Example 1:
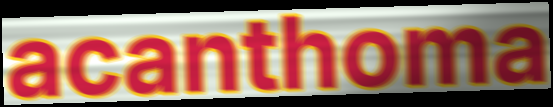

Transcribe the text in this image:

acanthoma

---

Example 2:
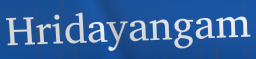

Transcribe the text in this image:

Hridayangam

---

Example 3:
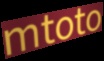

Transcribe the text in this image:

mtoto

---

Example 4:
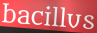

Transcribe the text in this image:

bacillus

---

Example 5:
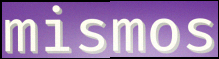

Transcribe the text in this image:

mismos